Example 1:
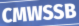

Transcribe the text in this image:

CMWSSB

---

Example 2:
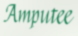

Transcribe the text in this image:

Amputee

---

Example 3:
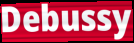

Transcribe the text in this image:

Debussy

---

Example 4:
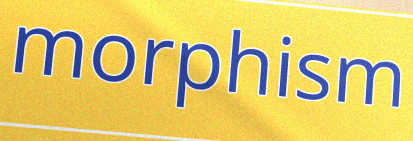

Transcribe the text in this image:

morphism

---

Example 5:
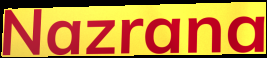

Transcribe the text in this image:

Nazrana